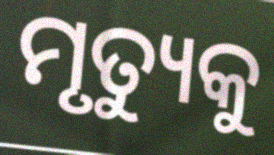
ମୃତ୍ୟୁକୁ